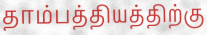
தாம்பத்தியத்திற்கு